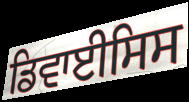
ਡਿਵਾਈਸਿਸ